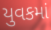
યુવકમાં